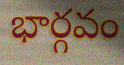
భార్గవం